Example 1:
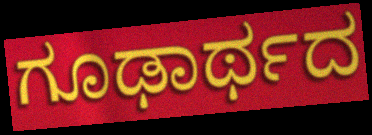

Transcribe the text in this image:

ಗೂಢಾರ್ಥದ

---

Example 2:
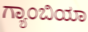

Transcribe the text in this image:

ಗ್ಯಾಂಬಿಯಾ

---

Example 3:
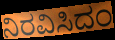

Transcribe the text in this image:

ನಿರವಿಸಿದಂ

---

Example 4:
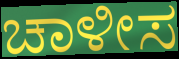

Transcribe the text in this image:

ಚಾಳೀಸ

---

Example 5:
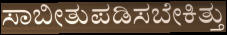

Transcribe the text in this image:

ಸಾಬೀತುಪಡಿಸಬೇಕಿತ್ತು